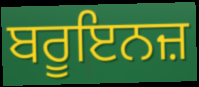
ਬਰੂਇਨਜ਼